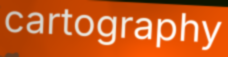
cartography